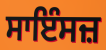
ਸਾਇੰਸਜ਼